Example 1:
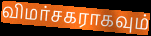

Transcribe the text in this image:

விமர்சகராகவும்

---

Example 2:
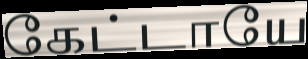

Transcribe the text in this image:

கேட்டாயே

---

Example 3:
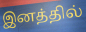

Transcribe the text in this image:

இனத்தில்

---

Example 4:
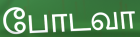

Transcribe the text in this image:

போடவா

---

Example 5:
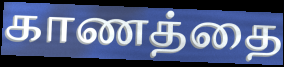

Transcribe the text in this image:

காணத்தை